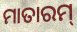
ମାତାରମ୍